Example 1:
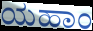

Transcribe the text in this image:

ಯಹಾಂ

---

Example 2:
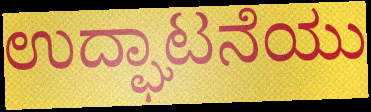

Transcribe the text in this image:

ಉದ್ಘಾಟನೆಯು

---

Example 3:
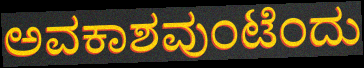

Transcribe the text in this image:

ಅವಕಾಶವುಂಟೆಂದು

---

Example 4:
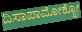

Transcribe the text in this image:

ದಿಸಾಪಾಮೋಕ್ಖೋ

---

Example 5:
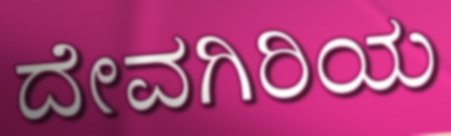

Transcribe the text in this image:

ದೇವಗಿರಿಯ